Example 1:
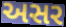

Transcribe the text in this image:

અસર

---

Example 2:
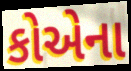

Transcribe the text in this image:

કોએના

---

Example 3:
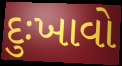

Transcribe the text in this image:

દુઃખાવો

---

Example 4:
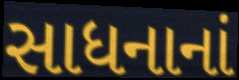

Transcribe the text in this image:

સાધનાનાં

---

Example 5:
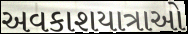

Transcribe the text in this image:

અવકાશયાત્રાઓ